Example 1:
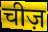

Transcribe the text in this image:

चीज़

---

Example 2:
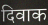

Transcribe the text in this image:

दिवाक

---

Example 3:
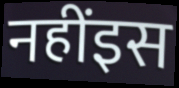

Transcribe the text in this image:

नहींइस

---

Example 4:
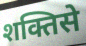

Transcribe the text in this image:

शक्तिसे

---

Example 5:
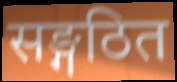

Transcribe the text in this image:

सङ्गठित